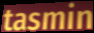
tasmin